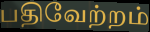
பதிவேற்றம்